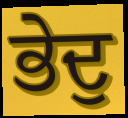
ਭੇਦੁ